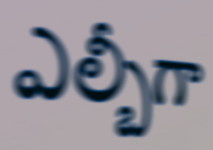
ఎల్బీగా